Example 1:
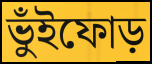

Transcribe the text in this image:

ভুঁইফোড়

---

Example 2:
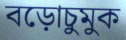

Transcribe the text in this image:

বড়োচুমুক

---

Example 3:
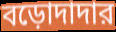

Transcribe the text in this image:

বড়োদাদার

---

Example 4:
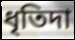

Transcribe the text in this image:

ধৃতিদা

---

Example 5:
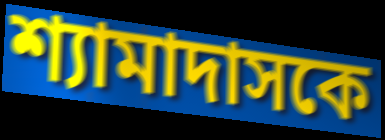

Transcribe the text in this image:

শ্যামাদাসকে